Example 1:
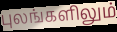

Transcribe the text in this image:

புலங்களிலும்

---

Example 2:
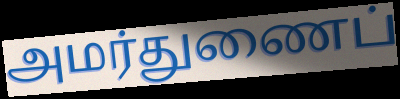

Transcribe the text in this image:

அமர்துணைப்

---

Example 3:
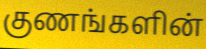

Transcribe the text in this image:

குணங்களின்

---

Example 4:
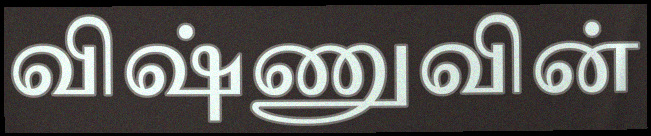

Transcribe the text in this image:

விஷ்ணுவின்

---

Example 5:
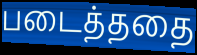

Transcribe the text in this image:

படைத்ததை